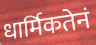
धार्मिकतेनं